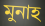
মুনাহ